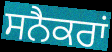
ਸਨੈਕਰਾਂ